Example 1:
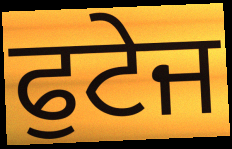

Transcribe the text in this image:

ਫੁਟੇਜ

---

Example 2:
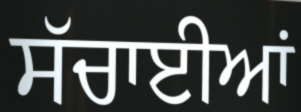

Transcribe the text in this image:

ਸੱਚਾਈਆਂ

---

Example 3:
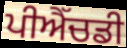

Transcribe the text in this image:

ਪੀਐੱਚਡੀ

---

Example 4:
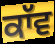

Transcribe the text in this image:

ਕਾੱਵ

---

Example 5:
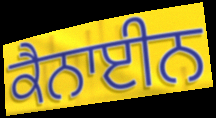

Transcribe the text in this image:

ਕੈਨਾਈਨ